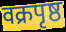
वक्रपृष्ठ